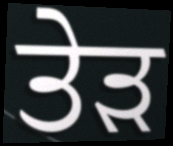
ਤੇੜ